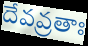
దేవవ్రతాః